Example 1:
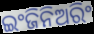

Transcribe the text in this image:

ଇଂଜିନିଅରିଂ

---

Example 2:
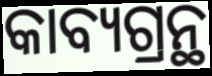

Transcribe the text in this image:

କାବ୍ୟଗ୍ରନ୍ଥ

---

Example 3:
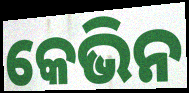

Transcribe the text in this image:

କେଭିନ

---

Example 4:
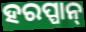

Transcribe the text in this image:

ହରପ୍ପାନ୍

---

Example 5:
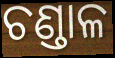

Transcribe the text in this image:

ଚଣ୍ଡାଳ